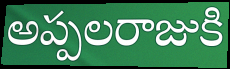
అప్పలరాజుకి